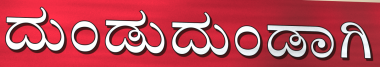
ದುಂಡುದುಂಡಾಗಿ